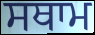
ਸਥਾਮ